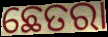
ଛେତରା